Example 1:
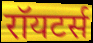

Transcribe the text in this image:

रॉयटर्स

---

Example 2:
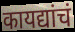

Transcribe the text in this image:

कायद्यांचं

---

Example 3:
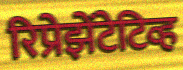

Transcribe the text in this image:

रिप्रेझेंटेटिव्ह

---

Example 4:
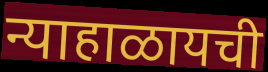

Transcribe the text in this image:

न्याहाळायची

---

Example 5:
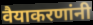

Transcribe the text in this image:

वैयाकरणांनी